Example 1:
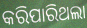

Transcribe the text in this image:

କରିପାରିଥଲା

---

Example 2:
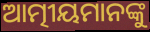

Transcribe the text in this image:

ଆତ୍ମୀୟମାନଙ୍କୁ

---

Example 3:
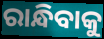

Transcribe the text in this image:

ରାନ୍ଧିବାକୁ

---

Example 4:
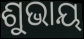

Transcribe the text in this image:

ଶୁଭାୟ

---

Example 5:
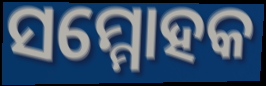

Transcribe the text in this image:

ସମ୍ମୋହକ